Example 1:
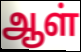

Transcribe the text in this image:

ஆள்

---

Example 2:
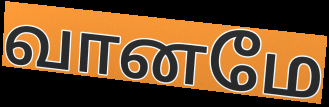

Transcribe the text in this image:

வானமே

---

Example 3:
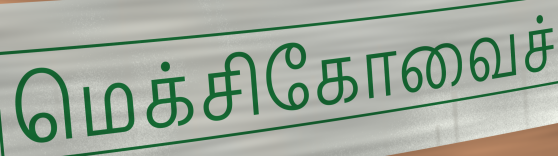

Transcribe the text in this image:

மெக்சிகோவைச்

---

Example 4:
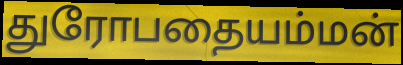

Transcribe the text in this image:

துரோபதையம்மன்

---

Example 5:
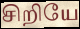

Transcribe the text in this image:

சிறியே